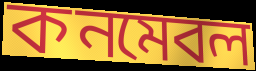
কনমেবল